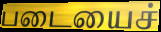
படையைச்